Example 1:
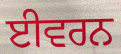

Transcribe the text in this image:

ਈਵਰਨ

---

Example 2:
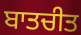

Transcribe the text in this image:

ਬਾਤਚੀਤ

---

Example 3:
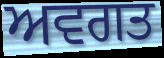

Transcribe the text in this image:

ਅਵਗਤ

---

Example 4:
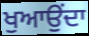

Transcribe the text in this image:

ਖੁਆਉਂਦਾ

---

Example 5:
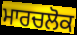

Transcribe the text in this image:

ਮਾਰਚਲੋਕ